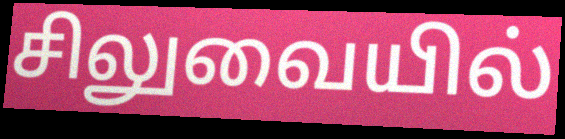
சிலுவையில்